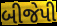
બીજેપી